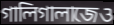
গালিগালাজেও